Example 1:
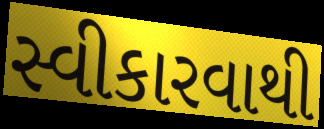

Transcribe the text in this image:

સ્વીકારવાથી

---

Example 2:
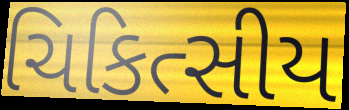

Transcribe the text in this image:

ચિકિત્સીય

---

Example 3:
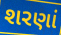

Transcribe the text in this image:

શરણાં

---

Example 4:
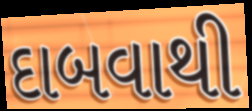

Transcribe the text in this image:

દાબવાથી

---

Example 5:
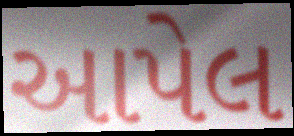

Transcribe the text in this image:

આપેલ